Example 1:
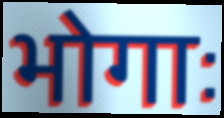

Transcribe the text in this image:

भोगाः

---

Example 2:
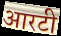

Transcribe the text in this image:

आरटी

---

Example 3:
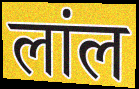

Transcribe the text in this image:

लांल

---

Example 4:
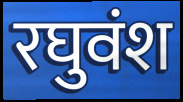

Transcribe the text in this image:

रघुवंश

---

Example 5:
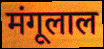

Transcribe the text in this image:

मंगूलाल